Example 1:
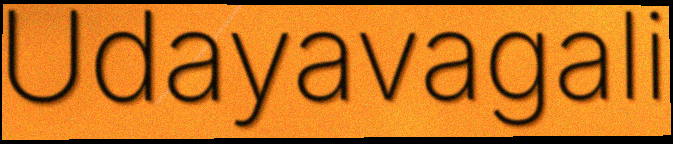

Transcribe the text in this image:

Udayavagali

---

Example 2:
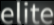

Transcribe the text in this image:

elite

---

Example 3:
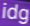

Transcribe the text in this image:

idg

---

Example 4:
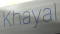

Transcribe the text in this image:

Khayal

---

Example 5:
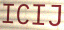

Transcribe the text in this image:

ICIJ